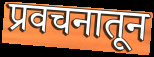
प्रवचनातून